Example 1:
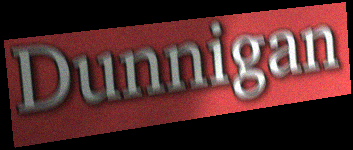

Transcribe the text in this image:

Dunnigan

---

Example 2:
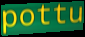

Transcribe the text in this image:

pottu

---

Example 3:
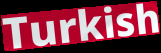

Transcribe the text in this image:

Turkish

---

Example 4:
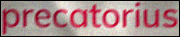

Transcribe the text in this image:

precatorius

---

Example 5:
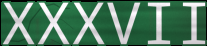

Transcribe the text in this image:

XXXVII